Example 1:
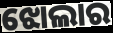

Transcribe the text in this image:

ଝୋଲାର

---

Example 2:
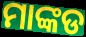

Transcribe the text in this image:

ମାଙ୍କଡ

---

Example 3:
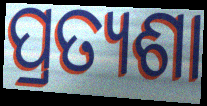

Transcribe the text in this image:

ପ୍ରତ୍ୟଶା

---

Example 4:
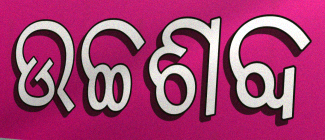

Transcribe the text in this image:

ଉଚ୍ଚଶବ୍ଦ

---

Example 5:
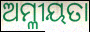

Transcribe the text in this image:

ଅମ୍ଳୀୟତା